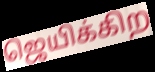
ஜெயிக்கிற